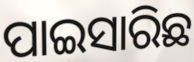
ପାଇସାରିଛ